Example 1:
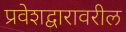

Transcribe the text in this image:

प्रवेशद्वारावरील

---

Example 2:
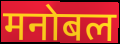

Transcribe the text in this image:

मनोबल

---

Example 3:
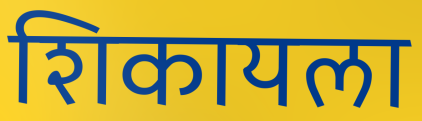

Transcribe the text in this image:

शिकायला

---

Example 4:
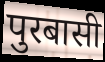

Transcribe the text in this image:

पुरबासी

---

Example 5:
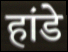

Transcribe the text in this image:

हांडे